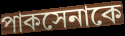
পাকসেনাকে